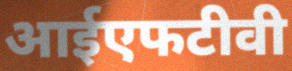
आईएफटीवी